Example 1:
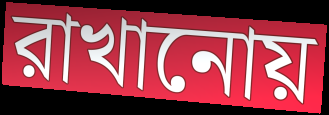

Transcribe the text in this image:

রাখানোয়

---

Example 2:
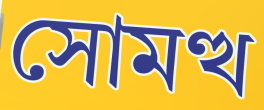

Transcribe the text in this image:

সোমত্থ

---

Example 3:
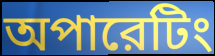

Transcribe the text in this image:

অপারেটিং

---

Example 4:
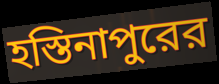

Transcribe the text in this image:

হস্তিনাপুরের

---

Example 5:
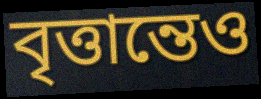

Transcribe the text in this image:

বৃত্তান্তেও